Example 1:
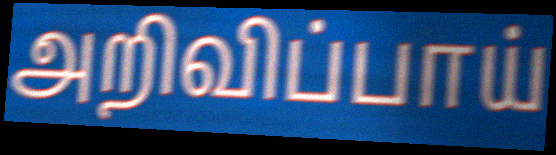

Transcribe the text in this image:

அறிவிப்பாய்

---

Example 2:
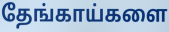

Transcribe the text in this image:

தேங்காய்களை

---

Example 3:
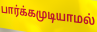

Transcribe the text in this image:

பார்க்கமுடியாமல்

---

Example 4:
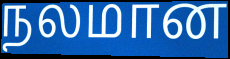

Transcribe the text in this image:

நலமான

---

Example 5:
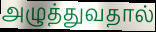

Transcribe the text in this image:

அழுத்துவதால்